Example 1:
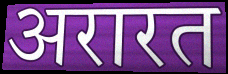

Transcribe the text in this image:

अरारत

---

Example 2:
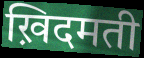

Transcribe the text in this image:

ख़िदमती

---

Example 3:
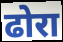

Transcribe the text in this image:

ढोरा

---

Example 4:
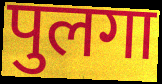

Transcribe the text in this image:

पुलगा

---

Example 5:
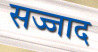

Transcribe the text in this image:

सज्‍जाद